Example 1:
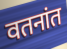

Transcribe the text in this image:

वतनांत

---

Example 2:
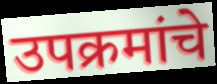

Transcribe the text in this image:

उपक्रमांचे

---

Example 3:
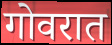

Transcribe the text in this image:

गोवरात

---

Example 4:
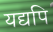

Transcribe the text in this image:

यद्यपि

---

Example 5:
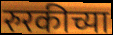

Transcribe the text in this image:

रुरकीच्या